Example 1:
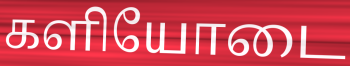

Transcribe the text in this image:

களியோடை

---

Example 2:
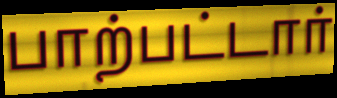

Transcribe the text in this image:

பாற்பட்டார்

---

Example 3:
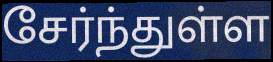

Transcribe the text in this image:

சேர்ந்துள்ள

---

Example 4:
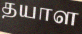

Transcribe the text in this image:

தயாள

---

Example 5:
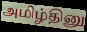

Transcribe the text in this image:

அமிழ்தினு